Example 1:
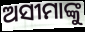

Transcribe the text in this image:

ଅସୀମାଙ୍କୁ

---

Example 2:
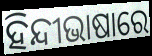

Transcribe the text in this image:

ହିନ୍ଦୀଭାଷାରେ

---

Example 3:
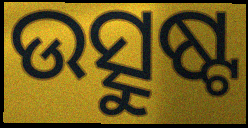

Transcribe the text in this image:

ଉତ୍ସୁଷ୍ଟ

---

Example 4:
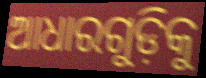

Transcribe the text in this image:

ଆଧାରଗୁଡ଼ିକୁ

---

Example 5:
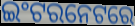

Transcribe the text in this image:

ଇଂଟରନେଟରେ